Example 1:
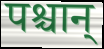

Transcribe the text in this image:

पश्चान्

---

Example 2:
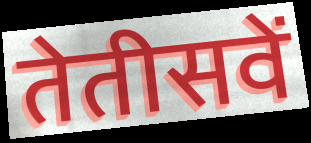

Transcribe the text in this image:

तेतीसवें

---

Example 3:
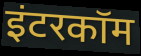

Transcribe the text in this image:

इंटरकॉम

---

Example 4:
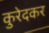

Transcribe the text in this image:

कुरेदकर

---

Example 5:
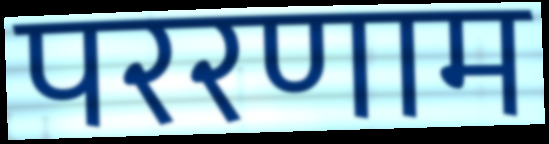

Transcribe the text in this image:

पररणाम